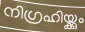
നിഗ്രഹിയ്ക്കും